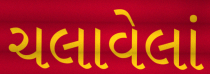
ચલાવેલાં